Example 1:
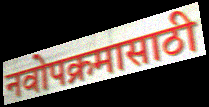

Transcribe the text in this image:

नवोपक्रमासाठी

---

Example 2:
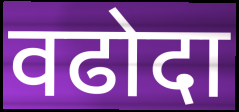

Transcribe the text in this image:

वढोदा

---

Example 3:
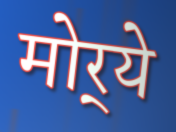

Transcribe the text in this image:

मोर्ये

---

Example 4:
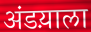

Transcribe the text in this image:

अंडय़ाला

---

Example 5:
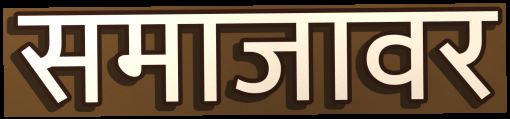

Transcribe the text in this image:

समाजावर